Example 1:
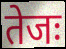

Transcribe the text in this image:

तेजः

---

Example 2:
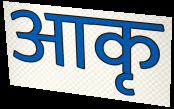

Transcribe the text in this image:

आकृ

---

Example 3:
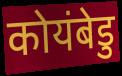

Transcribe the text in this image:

कोयंबेडु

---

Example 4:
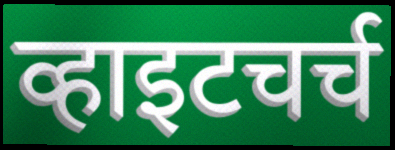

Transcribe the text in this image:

व्हाइटचर्च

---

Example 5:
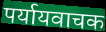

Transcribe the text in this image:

पर्यायवाचक